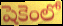
షెకెంలో